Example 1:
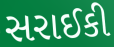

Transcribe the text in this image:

સરાઈકી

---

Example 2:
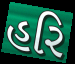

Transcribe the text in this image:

હરિ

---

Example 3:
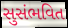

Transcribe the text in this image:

સુસંભવિત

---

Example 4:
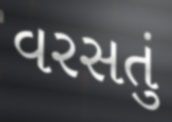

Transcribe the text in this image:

વરસતું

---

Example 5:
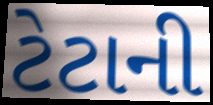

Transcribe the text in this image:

ટેટાની